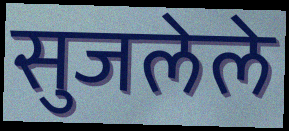
सुजलेले